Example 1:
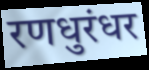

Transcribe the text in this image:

रणधुरंधर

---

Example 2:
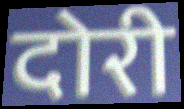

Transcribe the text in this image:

दोरी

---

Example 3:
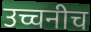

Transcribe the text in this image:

उच्चनीच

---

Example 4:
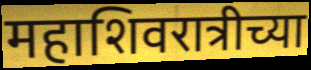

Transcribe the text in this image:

महाशिवरात्रीच्या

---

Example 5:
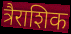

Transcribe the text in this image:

त्रैराशिक